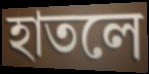
হাতলে